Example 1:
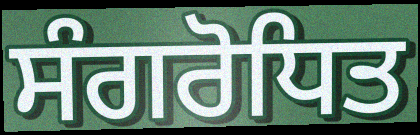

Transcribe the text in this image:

ਸੰਗਰੋਧਿਤ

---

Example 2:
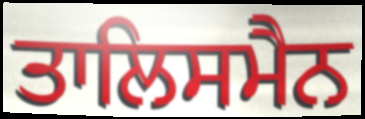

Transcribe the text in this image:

ਤਾਲਿਸਮੈਨ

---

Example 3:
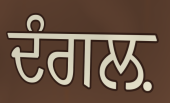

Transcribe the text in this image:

ਦੰਗਲ਼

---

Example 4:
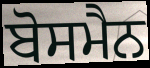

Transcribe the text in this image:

ਬੋਸਮੈਨ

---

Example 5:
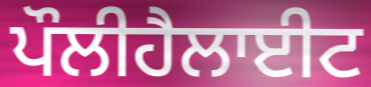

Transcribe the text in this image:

ਪੌਲੀਹੈਲਾਈਟ